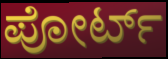
ಪೋರ್ಟ್